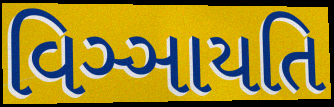
વિઞ્ઞાયતિ